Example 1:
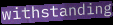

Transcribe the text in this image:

withstanding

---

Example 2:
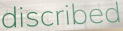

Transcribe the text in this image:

discribed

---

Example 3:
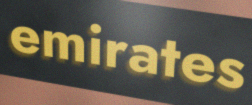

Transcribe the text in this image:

emirates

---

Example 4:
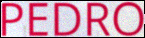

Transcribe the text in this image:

PEDRO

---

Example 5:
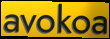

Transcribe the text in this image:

avokoa